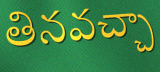
తినవచ్చా